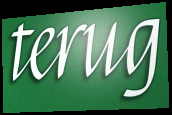
terug